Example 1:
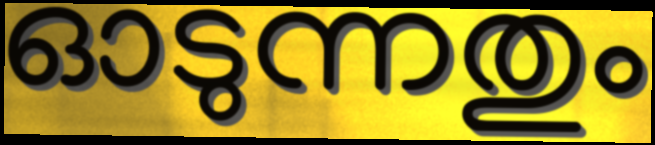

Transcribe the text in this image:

ഓടുന്നതും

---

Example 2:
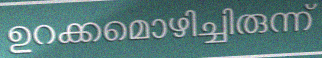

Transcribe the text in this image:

ഉറക്കമൊഴിച്ചിരുന്ന്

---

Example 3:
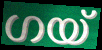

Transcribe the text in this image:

ഗയ്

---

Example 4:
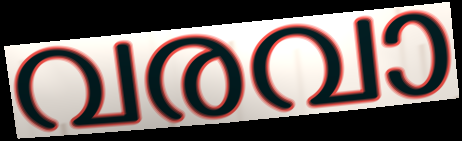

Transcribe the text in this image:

വരവാ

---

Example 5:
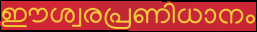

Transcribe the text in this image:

ഈശ്വരപ്രണിധാനം